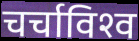
चर्चाविश्व